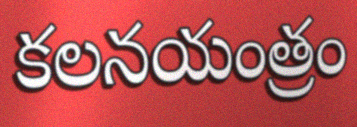
కలనయంత్రం